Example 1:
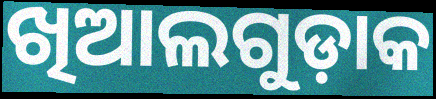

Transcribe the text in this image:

ଖିଆଲଗୁଡ଼ାକ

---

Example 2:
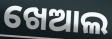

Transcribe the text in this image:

ଖେଆଲ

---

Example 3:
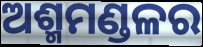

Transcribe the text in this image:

ଅଶ୍ମମଣ୍ଡଳର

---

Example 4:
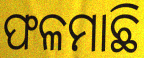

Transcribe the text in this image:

ଫଳମାଛି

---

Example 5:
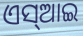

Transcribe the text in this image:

ଏସ୍ଆଇ